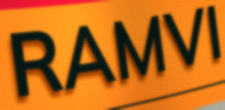
RAMVI